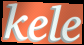
kele